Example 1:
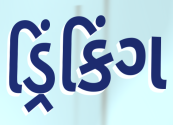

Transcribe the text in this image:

ડ્રિંકિંગ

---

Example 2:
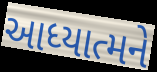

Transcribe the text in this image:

આધ્યાત્મને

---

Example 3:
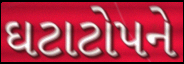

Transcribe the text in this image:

ઘટાટોપને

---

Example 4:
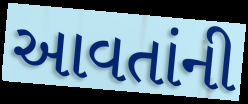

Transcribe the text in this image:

આવતાંની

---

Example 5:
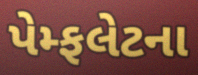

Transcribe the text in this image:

પેમ્ફલેટના